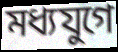
মধ্যযুগে